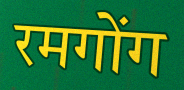
रमगोंग